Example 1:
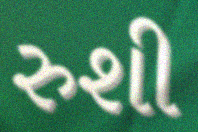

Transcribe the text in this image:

રુશી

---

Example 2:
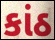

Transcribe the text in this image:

કાંઠ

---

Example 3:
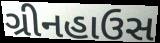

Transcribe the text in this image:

ગ્રીનહાઉસ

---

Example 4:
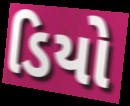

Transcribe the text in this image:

ડિયો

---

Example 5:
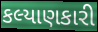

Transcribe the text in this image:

કલ્યાણકારી